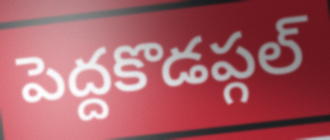
పెద్దకొడప్గల్